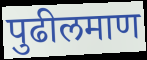
पुढीलमाण